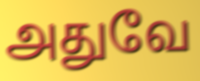
அதுவே